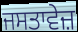
ਜਸਤਾਵੇਜ਼